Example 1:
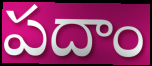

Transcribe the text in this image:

పదాం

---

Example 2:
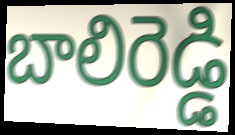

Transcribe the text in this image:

బాలిరెడ్డి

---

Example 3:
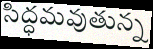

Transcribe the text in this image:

సిద్ధమవుతున్న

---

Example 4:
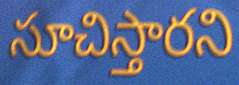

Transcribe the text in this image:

సూచిస్తారని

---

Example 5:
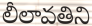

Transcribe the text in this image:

లీలావతిని